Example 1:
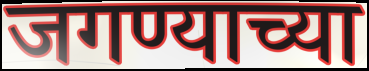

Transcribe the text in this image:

जगण्याच्या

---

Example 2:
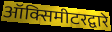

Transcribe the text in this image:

ऑक्सिमीटरद्वारे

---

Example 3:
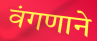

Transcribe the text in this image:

वंगणाने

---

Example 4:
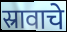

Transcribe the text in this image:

स्रावाचे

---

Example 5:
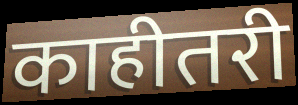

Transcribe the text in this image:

काहीतरी